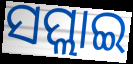
ସପ୍ଲାଇ